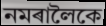
নমৰালৈকে